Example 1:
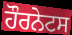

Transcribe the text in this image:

ਹੌਰਨੇਟਸ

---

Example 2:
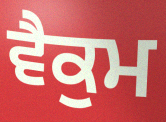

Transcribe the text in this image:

ਵੈਕੁਮ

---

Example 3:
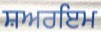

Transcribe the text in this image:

ਸ਼ਅਰਇਮ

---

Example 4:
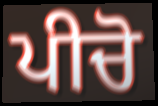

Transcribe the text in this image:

ਪੀਚੋ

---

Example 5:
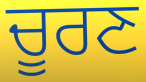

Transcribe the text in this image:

ਚੂਰਣ